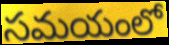
సమయంలో